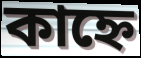
কাহ্নে